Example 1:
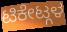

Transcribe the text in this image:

ಟಿಕೇಟ್ಗಳ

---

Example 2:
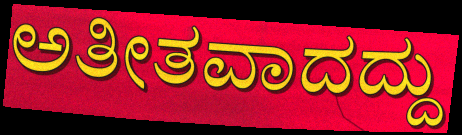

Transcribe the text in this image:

ಅತೀತವಾದದ್ದು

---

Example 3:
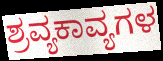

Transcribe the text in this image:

ಶ್ರವ್ಯಕಾವ್ಯಗಳ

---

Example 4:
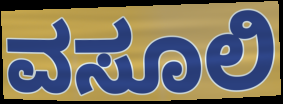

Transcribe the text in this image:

ವಸೂಲಿ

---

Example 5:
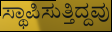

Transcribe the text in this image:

ಸ್ಥಾಪಿಸುತ್ತಿದ್ದವು